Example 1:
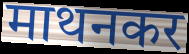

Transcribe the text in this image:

माथनकर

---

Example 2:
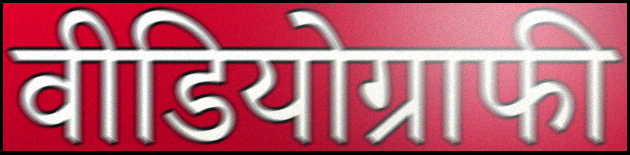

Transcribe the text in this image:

वीडियोग्राफी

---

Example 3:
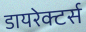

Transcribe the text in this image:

डायरेक्टर्स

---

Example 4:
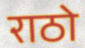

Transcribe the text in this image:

राठो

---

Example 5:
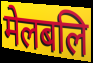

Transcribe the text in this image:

मेलबलि